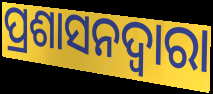
ପ୍ରଶାସନଦ୍ୱାରା